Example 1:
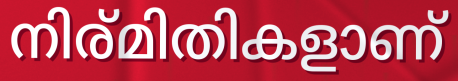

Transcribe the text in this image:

നിര്മിതികളാണ്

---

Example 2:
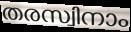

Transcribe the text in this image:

തരസ്വിനാം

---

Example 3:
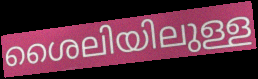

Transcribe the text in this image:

ശൈലിയിലുള്ള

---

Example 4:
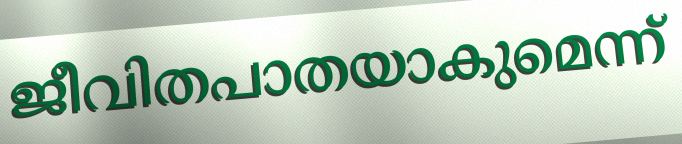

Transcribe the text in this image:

ജീവിതപാതയാകുമെന്ന്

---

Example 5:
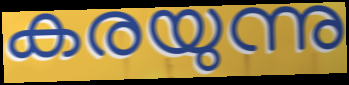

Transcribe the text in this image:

കരയുന്നു